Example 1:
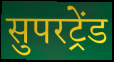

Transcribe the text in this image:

सुपरट्रेंड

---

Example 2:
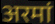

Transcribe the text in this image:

अरमां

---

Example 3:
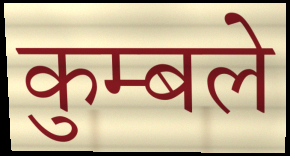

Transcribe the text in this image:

कुम्बले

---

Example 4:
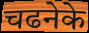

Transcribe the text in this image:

चढनेके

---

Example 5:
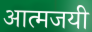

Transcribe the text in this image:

आत्मजयी